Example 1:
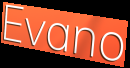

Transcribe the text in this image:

Evano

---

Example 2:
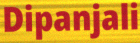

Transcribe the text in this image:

Dipanjali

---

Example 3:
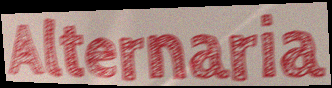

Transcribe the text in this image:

Alternaria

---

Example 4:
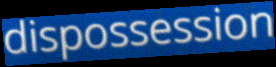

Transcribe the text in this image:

dispossession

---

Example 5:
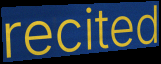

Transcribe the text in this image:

recited